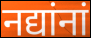
नद्यांनां